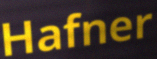
Hafner